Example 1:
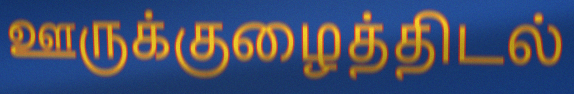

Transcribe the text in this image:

ஊருக்குழைத்திடல்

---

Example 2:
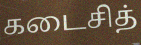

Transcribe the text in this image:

கடைசித்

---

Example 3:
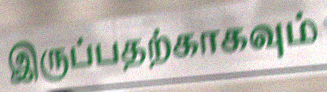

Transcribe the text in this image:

இருப்பதற்காகவும்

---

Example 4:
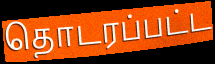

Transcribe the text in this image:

தொடரப்பட்ட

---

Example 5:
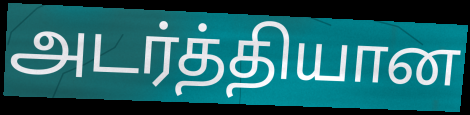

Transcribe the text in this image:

அடர்த்தியான